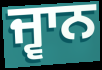
ਜ੍ਵਾਨ